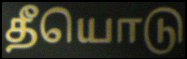
தீயொடு